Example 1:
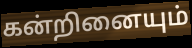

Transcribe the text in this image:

கன்றினையும்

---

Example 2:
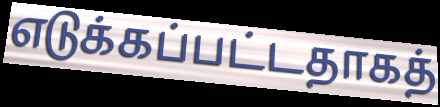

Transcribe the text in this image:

எடுக்கப்பட்டதாகத்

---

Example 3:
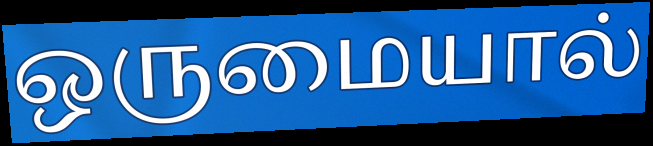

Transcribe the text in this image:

ஒருமையால்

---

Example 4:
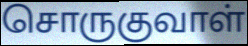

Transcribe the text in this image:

சொருகுவாள்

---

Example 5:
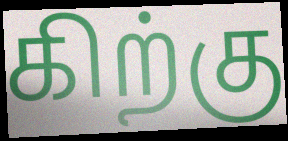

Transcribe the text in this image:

கிற்கு